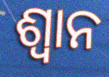
ଶ୍ଵାନ